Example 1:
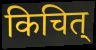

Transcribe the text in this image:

किचित्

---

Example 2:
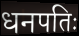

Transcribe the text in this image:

धनपतिः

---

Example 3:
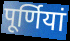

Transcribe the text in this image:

पूर्णियां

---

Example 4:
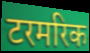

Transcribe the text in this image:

टरमरिक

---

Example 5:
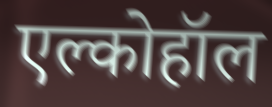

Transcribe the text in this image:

एल्कोहॉल